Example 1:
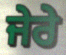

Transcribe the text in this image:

ਜੇਰੇ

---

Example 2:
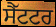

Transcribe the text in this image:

ਸੈੱਟਟਰ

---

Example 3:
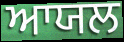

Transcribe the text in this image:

ਆਯਲ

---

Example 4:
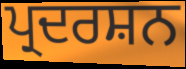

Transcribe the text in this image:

ਪ੍ਰਦਰਸ਼ਨ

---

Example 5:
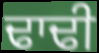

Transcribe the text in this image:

ਢਾਢੀ